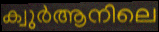
ക്വുർആനിലെ